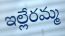
ఇల్లేరమ్మ